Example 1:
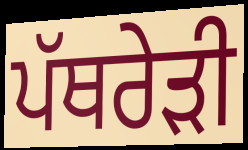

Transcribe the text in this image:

ਪੱਥਰੇੜੀ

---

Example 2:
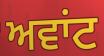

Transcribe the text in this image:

ਅਵਾਂਟ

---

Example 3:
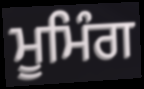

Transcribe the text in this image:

ਮੂਮਿੰਗ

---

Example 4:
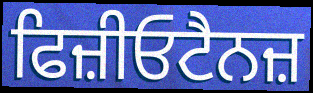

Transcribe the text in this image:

ਫਿਜ਼ੀਓਟੈਨਜ਼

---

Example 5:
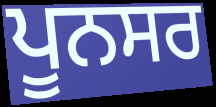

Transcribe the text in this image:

ਪੂਨਸਰ